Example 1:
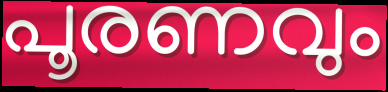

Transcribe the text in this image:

പൂരണവും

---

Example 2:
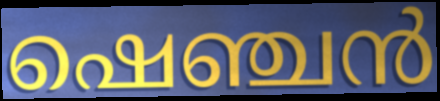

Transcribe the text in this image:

ഷെഞ്ചൻ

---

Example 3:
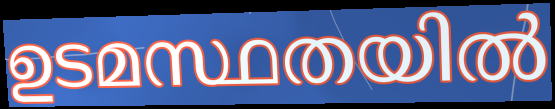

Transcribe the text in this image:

ഉടമസ്ഥതയിൽ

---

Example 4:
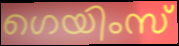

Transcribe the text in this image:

ഗെയിംസ്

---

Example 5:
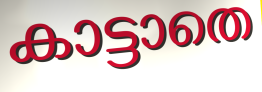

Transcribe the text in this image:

കാട്ടാതെ